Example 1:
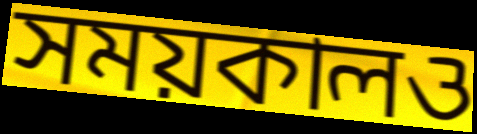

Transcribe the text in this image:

সময়কালও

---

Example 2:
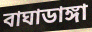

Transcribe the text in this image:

বাঘাডাঙ্গা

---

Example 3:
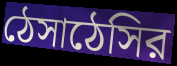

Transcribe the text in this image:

ঠেসাঠেসির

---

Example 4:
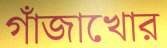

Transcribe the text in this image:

গাঁজাখোর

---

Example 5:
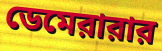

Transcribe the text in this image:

ডেমেরারার